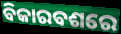
ବିକାରବଶରେ